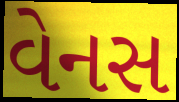
વેનસ